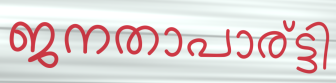
ജനതാപാര്ട്ടി